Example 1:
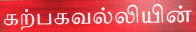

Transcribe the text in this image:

கற்பகவல்லியின்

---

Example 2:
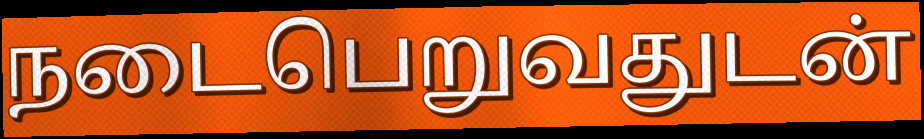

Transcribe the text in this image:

நடைபெறுவதுடன்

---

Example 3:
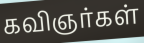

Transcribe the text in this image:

கவிஞர்கள்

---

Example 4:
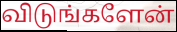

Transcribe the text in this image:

விடுங்களேன்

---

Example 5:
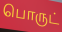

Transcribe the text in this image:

பொருட்